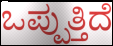
ಒಪ್ಪುತ್ತಿದೆ